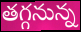
తగ్గనున్న